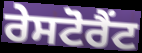
ਰੇਸਟੋਰੈਂਟ